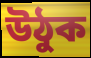
উঠুক